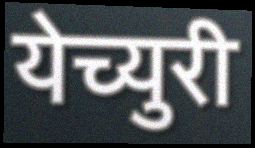
येच्युरी